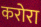
करोरा